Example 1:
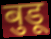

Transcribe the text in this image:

बुडू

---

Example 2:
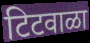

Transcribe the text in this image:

टिटवाळा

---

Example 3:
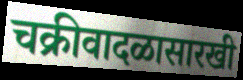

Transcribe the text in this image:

चक्रीवादळासारखी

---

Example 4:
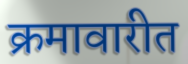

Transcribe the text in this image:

क्रमावारीत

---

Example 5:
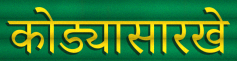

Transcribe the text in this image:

कोड्यासारखे